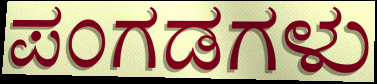
ಪಂಗಡಗಳು